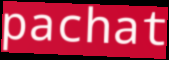
pachat